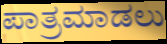
ಪಾತ್ರಮಾಡಲು